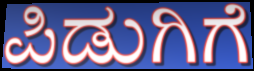
ಪಿಡುಗಿಗೆ